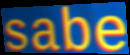
sabe